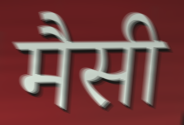
मैसी